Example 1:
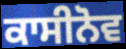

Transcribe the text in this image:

ਕਾਸੀਨੋਵ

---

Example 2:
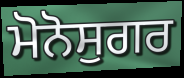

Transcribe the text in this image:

ਮੋਨੋਸੁਗਰ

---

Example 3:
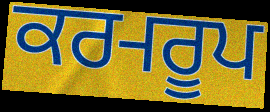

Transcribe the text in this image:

ਕਰ੍ਮਰੂਪ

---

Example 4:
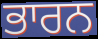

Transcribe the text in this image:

ਭਾਰਨ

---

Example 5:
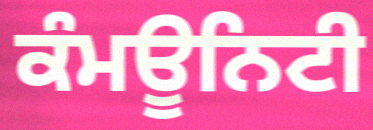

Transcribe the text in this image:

ਕੰਮਊਨਿਟੀ